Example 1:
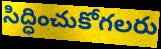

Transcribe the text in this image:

సిద్ధించుకోగలరు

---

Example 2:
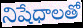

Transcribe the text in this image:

నిషేధాలతో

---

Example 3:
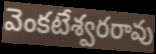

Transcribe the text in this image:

వెంకటేశ్వరరావు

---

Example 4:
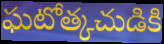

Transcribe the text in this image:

ఘటోత్కచుడికి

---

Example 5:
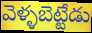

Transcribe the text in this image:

వెళ్ళబెట్టేడు